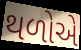
થળોએ